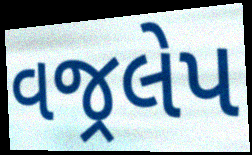
વજ્રલેપ